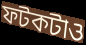
ফটকটাও